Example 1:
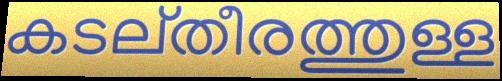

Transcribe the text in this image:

കടല്തീരത്തുള്ള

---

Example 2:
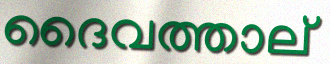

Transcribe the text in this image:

ദൈവത്താല്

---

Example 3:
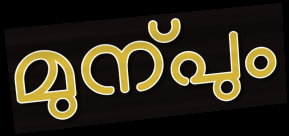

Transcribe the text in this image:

മുന്പും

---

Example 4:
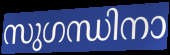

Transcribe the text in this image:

സുഗന്ധിനാ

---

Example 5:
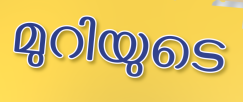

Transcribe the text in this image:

മുറിയുടെ